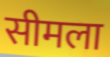
सीमला